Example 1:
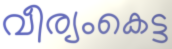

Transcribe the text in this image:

വീര്യംകെട്ട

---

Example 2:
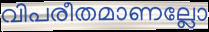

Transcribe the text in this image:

വിപരീതമാണല്ലോ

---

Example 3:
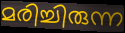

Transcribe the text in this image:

മരിച്ചിരുന്ന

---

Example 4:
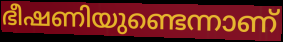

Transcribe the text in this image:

ഭീഷണിയുണ്ടെന്നാണ്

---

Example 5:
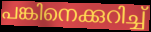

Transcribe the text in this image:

പങ്കിനെക്കുറിച്ച്